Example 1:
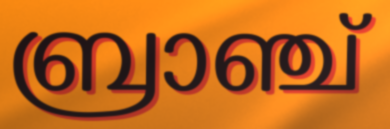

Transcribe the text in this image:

ബ്രാഞ്ച്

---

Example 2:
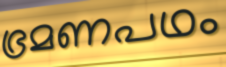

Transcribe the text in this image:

ഭ്രമണപഥം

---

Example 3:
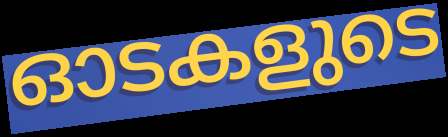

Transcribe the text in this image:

ഓടകളുടെ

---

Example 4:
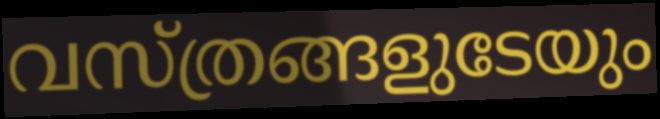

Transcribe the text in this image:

വസ്ത്രങ്ങളുടേയും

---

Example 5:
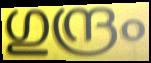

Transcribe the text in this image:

ഗുന്ദ്രം